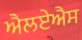
ਐਲਏਐਸ